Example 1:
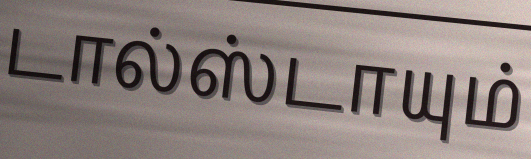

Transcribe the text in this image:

டால்ஸ்டாயும்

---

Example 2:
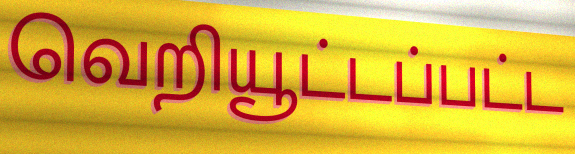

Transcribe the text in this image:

வெறியூட்டப்பட்ட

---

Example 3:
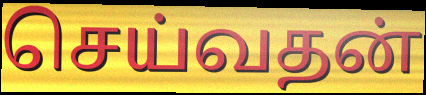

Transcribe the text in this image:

செய்வதன்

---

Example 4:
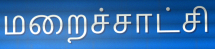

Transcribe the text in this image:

மறைச்சாட்சி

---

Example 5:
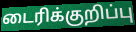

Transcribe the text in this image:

டைரிக்குறிப்பு